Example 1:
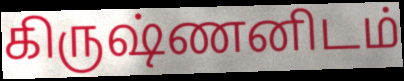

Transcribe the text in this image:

கிருஷ்ணனிடம்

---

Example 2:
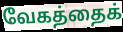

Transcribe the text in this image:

வேகத்தைக்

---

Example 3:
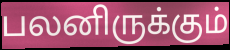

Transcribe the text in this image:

பலனிருக்கும்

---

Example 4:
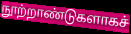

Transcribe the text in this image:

நூற்றாண்டுகளாகச்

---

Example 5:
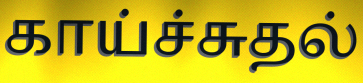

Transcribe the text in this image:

காய்ச்சுதல்